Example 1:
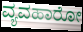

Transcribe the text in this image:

ವ್ಯವಹಾರೋ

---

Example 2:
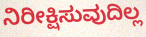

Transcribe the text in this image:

ನಿರೀಕ್ಷಿಸುವುದಿಲ್ಲ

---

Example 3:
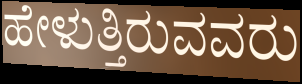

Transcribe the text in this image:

ಹೇಳುತ್ತಿರುವವರು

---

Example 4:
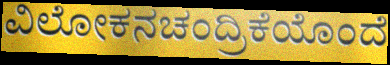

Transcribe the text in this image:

ವಿಲೋಕನಚಂದ್ರಿಕೆಯೊಂದೆ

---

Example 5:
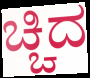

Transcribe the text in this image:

ಚ್ಚಿದ